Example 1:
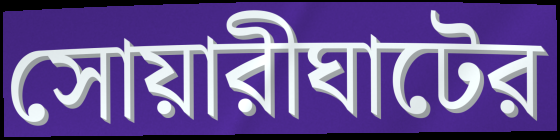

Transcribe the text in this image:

সোয়ারীঘাটের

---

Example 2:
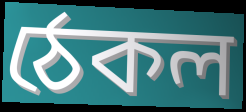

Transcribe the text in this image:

ঠেকল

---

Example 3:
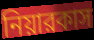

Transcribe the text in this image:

নিয়ারকাস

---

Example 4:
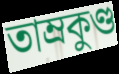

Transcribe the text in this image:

তাম্রকুণ্ড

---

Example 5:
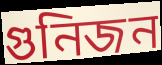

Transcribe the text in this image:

গুনিজন